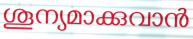
ശൂന്യമാക്കുവാൻ